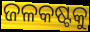
ଜଳକଷ୍ଟକୁ